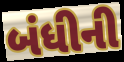
બંધીની